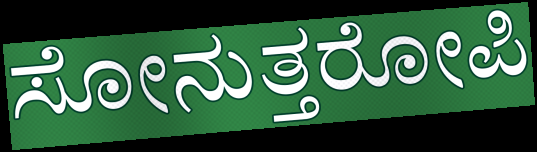
ಸೋನುತ್ತರೋಪಿ